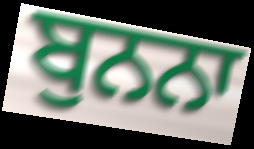
ਬੁਨਨਾ